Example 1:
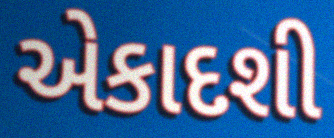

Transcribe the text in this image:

એકાદશી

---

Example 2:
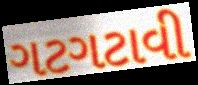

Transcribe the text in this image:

ગટગટાવી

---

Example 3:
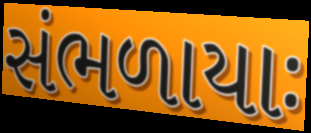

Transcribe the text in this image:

સંભળાયાઃ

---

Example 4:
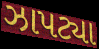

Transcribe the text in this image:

ઝાપટ્યા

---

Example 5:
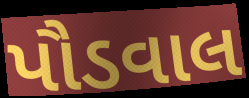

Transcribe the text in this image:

પૌડવાલ